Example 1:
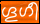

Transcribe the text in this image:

ഗൂഗീ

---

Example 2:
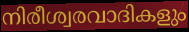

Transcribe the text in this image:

നിരീശ്വരവാദികളും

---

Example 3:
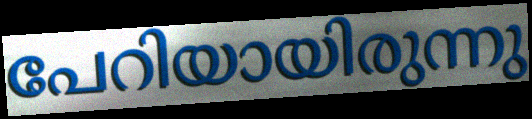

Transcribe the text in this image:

പേറിയായിരുന്നു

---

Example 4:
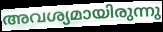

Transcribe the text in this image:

അവശ്യമായിരുന്നു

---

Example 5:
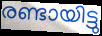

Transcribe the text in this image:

രണ്ടായിട്ടു